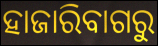
ହାଜାରିବାଗରୁ